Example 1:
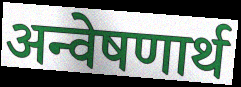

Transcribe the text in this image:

अन्वेषणार्थ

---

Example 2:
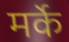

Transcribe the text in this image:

मर्के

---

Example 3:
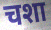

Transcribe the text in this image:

चशा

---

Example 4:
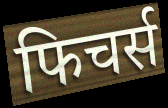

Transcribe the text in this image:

फिचर्स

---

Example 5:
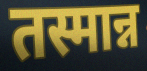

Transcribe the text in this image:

तस्मान्न